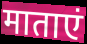
माताएं